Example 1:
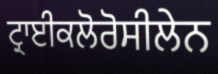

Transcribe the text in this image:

ਟ੍ਰਾਈਕਲੋਰੋਸੀਲੇਨ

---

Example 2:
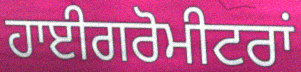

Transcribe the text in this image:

ਹਾਈਗਰੋਮੀਟਰਾਂ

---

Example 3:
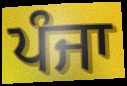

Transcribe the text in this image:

ਪੰਜਾ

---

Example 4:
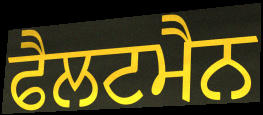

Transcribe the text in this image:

ਫੈਲਟਮੈਨ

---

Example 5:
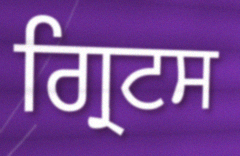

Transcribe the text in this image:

ਗ੍ਰਿਟਸ